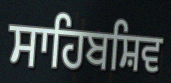
ਸਾਹਿਬਸ਼ਿਵ